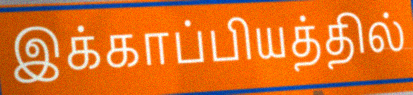
இக்காப்பியத்தில்